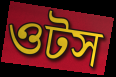
ওটস